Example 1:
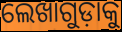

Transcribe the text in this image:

ଲେଖାଗୁଡ଼ାକୁ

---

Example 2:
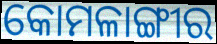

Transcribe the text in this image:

କୋମଳାଙ୍ଗୀର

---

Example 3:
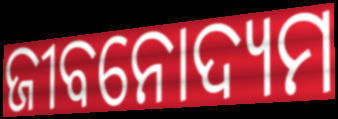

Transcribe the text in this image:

ଜୀବନୋଦ୍ୟମ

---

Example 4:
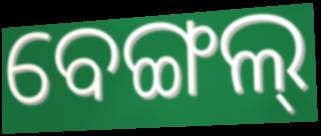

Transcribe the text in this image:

ବେଙ୍ଗଲ୍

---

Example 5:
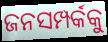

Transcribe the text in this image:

ଜନସମ୍ପର୍କକୁ